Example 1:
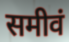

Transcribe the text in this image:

समीवं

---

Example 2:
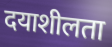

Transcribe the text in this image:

दयाशीलता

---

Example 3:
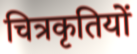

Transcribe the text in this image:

चित्रकृतियों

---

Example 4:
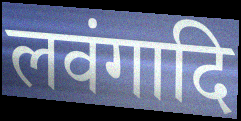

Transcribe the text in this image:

लवंगादि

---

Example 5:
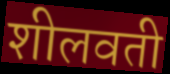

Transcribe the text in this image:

शीलवती